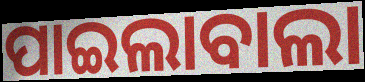
ପାଇଲାବାଲା